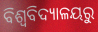
ବିଶ୍ୱବିଦ୍ୟାଳୟରୁ